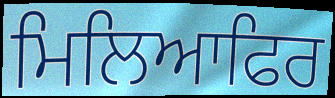
ਮਿਲਿਆਫਿਰ